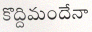
కొద్దిమందేనా